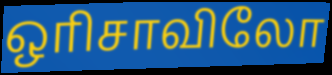
ஒரிசாவிலோ